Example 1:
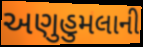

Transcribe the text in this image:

અણુહુમલાની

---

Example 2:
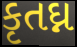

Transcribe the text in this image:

કૃતઘ્ન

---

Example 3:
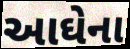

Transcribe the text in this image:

આઘેના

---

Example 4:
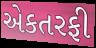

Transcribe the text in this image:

એકતરફી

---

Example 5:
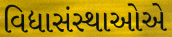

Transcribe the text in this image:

વિદ્યાસંસ્થાઓએ